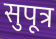
सुपूत्र